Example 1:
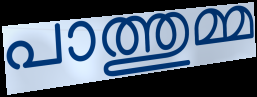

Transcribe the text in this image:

പാത്തുമ്മ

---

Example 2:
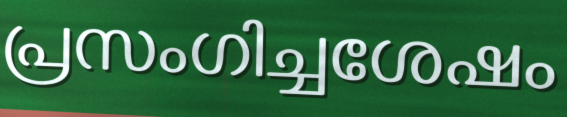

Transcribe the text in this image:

പ്രസംഗിച്ചശേഷം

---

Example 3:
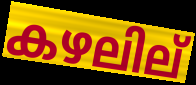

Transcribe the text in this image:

കഴലില്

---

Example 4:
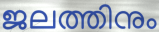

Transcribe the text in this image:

ജലത്തിനും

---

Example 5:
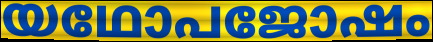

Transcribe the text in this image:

യഥോപജോഷം